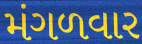
મંગળવાર